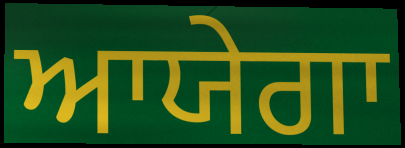
ਆਯੇਗਾ